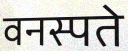
वनस्पते